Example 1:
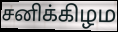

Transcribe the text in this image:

சனிக்கிழம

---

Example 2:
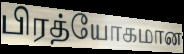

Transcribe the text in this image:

பிரத்யோகமான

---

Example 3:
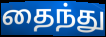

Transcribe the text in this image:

தைந்து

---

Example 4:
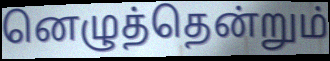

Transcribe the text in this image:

னெழுத்தென்றும்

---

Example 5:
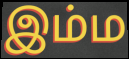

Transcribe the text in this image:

இம்ம